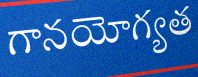
గానయోగ్యత